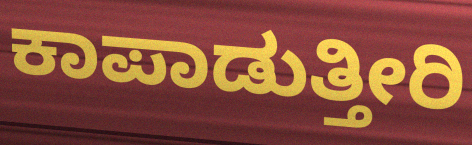
ಕಾಪಾಡುತ್ತೀರಿ